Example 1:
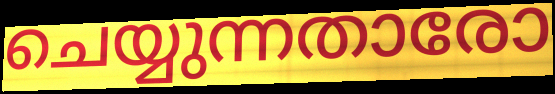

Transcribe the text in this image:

ചെയ്യുന്നതാരോ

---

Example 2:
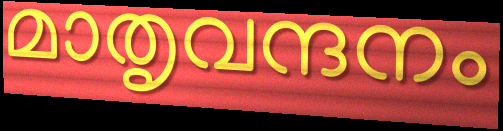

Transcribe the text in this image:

മാതൃവന്ദനം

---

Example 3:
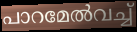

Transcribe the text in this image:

പാറമേൽവച്ച്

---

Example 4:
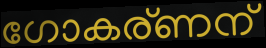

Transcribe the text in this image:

ഗോകര്ണന്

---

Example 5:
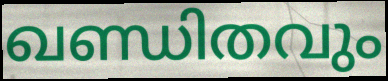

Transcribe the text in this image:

ഖണ്ഡിതവും